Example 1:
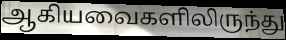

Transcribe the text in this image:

ஆகியவைகளிலிருந்து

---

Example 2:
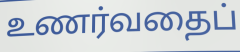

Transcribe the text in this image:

உணர்வதைப்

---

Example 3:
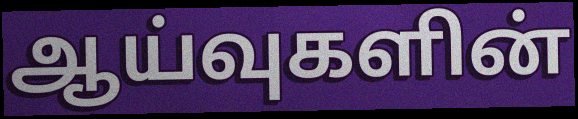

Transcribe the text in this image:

ஆய்வுகளின்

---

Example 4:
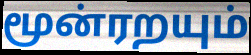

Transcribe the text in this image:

மூன்ரறயும்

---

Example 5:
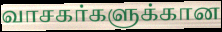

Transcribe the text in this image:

வாசகர்களுக்கான